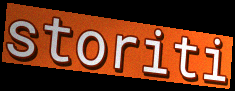
storiti